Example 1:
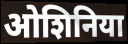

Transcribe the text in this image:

ओशिनिया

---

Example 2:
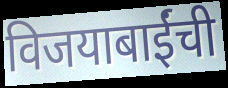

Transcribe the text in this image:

विजयाबाईंची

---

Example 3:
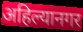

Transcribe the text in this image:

अहिल्यानगर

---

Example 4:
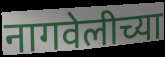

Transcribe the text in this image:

नागवेलीच्या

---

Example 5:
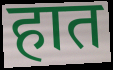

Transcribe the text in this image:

हात